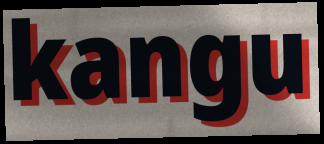
kangu